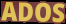
ADOS